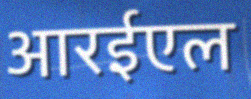
आरईएल